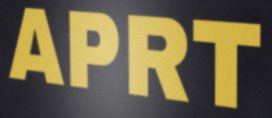
APRT